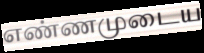
எண்ணமுடைய